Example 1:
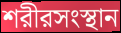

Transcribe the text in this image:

শরীরসংস্থান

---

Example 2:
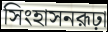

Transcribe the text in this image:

সিংহাসনরূঢ়া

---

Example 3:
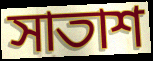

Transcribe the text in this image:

সাতাশ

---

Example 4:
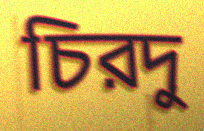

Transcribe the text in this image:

চিরদু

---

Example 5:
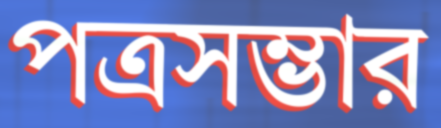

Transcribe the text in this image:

পত্রসম্ভার